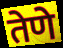
तेणे